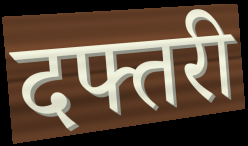
दफ्तरी